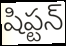
షిప్టన్